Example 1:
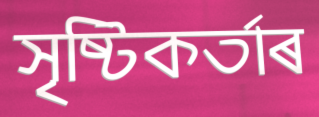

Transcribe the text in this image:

সৃষ্টিকৰ্তাৰ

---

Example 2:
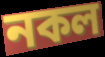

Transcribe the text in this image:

নকল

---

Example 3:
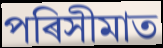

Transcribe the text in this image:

পৰিসীমাত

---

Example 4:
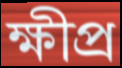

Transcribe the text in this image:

ক্ষীপ্ৰ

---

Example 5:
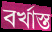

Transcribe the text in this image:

বৰ্খাস্ত